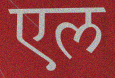
एल